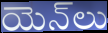
యెన్‌లు